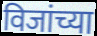
विजांच्या